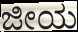
ಜೀಯ